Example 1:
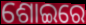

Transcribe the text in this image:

ଶୋଇରେ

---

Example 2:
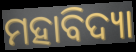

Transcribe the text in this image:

ମହାବିଦ୍ୟା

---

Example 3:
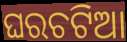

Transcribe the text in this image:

ଘରଚଟିଆ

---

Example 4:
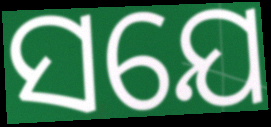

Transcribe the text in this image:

ସଯେ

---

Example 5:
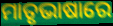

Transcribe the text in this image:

ମାତୃଭାଷାରେ